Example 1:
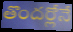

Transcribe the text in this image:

తొందర్లోనే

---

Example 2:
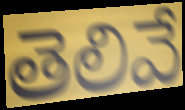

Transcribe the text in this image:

తెలివే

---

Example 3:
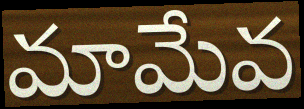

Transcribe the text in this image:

మామేవ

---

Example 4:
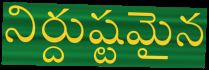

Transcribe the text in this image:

నిర్దుష్టమైన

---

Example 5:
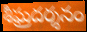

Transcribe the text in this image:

శీఘ్రదర్శనం